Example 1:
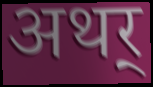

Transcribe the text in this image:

अथर्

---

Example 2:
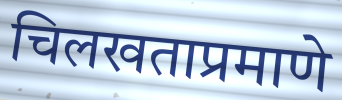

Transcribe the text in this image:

चिलखताप्रमाणे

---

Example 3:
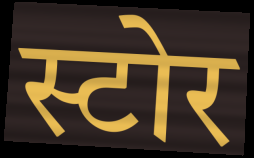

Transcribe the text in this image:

स्टोर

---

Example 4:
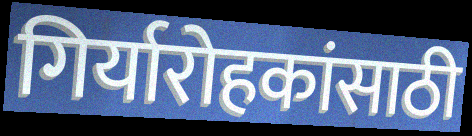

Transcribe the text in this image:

गिर्यारोहकांसाठी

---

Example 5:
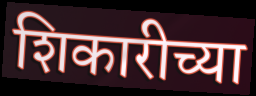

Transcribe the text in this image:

शिकारीच्या